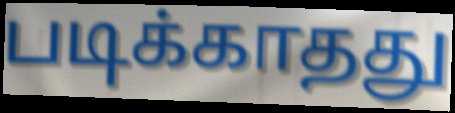
படிக்காதது